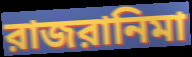
রাজরানিমা